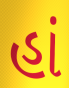
હાં